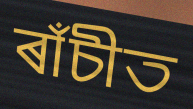
ৰাঁচীত